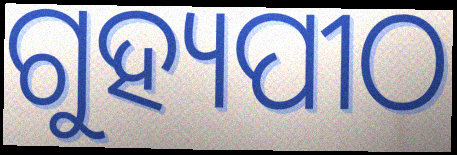
ଗୁହ୍ୟପୀଠ